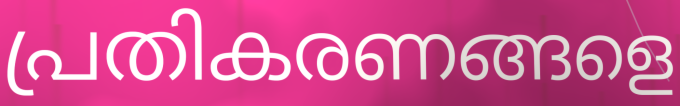
പ്രതികരണങ്ങളെ